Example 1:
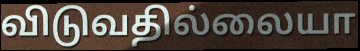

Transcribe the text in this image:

விடுவதில்லையா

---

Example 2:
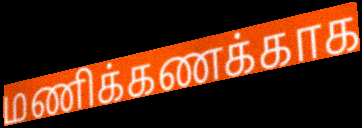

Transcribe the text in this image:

மணிக்கணக்காக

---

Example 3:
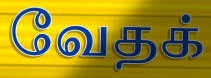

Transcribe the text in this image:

வேதக்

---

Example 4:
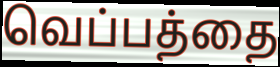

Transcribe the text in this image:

வெப்பத்தை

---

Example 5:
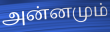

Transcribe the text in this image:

அன்னமும்